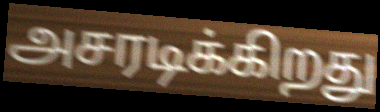
அசரடிக்கிறது